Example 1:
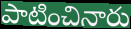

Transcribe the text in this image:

పాటించినారు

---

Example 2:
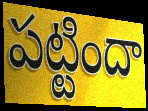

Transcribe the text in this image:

పట్టిందా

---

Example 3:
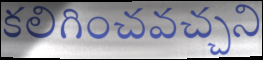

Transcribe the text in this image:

కలిగించవచ్చని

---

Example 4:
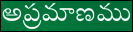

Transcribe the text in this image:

అప్రమాణము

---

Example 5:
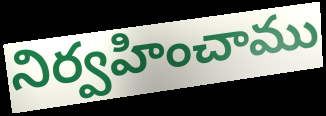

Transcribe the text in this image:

నిర్వహించాము